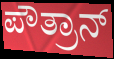
ಪೌತ್ರಾನ್